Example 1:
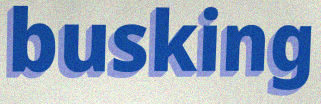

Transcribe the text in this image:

busking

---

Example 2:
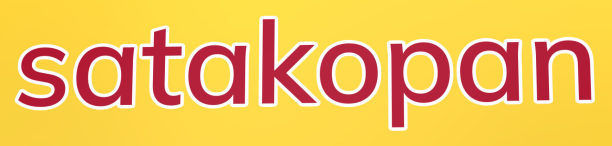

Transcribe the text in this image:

satakopan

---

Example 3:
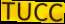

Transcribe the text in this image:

TUCC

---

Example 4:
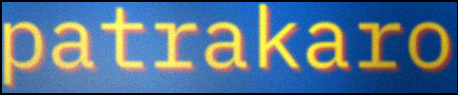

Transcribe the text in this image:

patrakaro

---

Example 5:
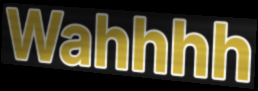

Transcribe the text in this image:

Wahhhh